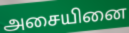
அசையினை